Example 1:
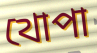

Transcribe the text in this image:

থোপা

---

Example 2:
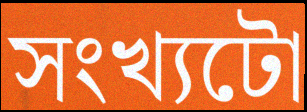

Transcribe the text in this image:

সংখ্যটো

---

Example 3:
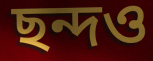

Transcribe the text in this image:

ছন্দও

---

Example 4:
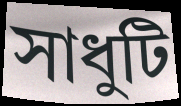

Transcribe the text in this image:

সাধুটি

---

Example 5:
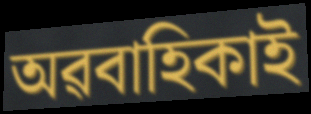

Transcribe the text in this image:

অৱবাহিকাই